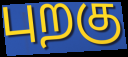
புறகு